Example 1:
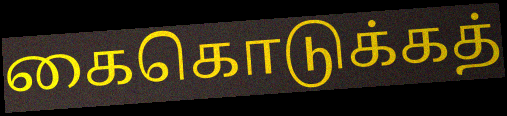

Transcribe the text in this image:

கைகொடுக்கத்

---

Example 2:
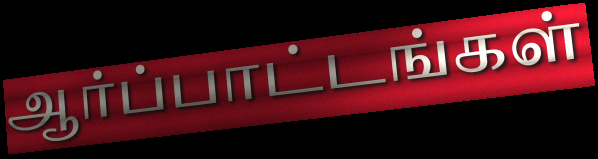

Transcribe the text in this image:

ஆர்ப்பாட்டங்கள்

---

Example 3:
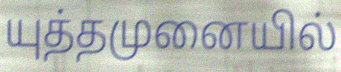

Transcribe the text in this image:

யுத்தமுனையில்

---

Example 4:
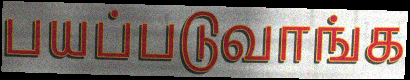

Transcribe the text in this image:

பயப்படுவாங்க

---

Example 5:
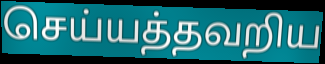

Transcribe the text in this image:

செய்யத்தவறிய